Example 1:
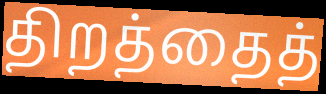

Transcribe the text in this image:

திறத்தைத்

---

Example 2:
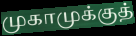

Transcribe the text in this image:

முகாமுக்குத்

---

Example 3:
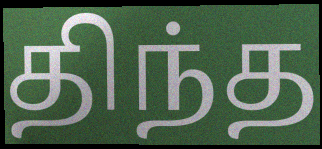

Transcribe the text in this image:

திந்த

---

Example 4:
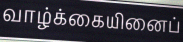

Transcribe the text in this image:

வாழ்க்கையினைப்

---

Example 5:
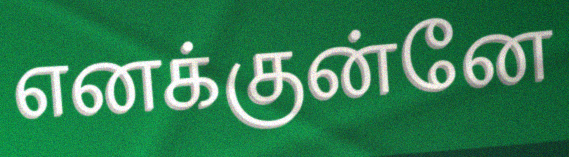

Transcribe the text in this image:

எனக்குன்னே